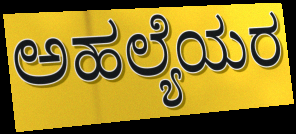
ಅಹಲ್ಯೆಯರ